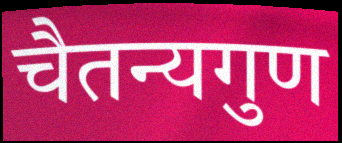
चैतन्यगुण